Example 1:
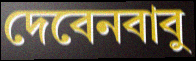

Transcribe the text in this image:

দেবেনবাবু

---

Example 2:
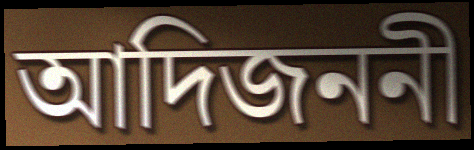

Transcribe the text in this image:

আদিজননী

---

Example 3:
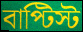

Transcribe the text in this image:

বাপ্টিস্ট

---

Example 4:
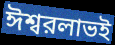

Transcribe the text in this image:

ঈশ্বরলাভই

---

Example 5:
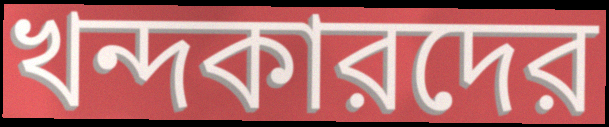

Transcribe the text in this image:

খন্দকারদের